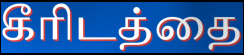
கீரிடத்தை